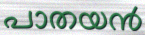
പാതയൻ